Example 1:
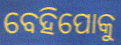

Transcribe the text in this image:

ବେହିପୋକୁ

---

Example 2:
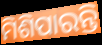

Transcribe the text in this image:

ମିଶିପାରନ୍ତି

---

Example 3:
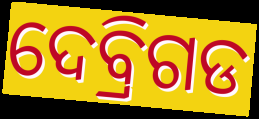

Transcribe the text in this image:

ଦେବ୍ରିଗଡ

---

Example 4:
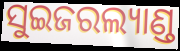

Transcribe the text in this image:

ସୁଇଜରଲ୍ୟାଣ୍ଡ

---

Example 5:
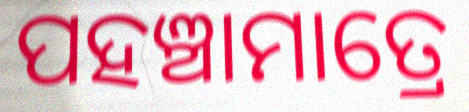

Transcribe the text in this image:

ପହଞ୍ଚାମାତ୍ରେ